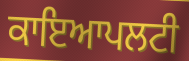
ਕਾਇਆਪਲਟੀ